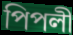
পিপলী